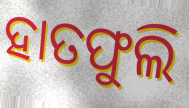
ହାତଫୁଲି